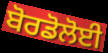
ਬੋਰਡੋਲੋਈ